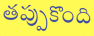
తప్పుకొంది